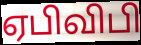
ஏபிவிபி